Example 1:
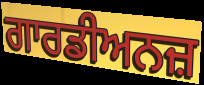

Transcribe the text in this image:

ਗਾਰਡੀਅਨਜ਼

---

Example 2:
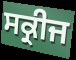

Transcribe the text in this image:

ਸਕ੍ਰੀਜ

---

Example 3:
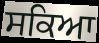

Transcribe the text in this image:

ਸਕਿਆ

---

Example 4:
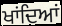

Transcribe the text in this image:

ਖਾਂਦਿਆਂ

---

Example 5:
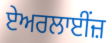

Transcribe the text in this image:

ਏਅਰਲਾਈਂਜ਼